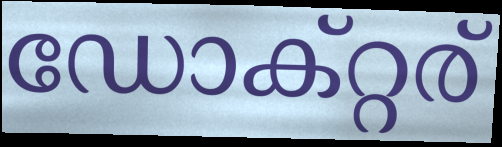
ഡോക്റ്റര്